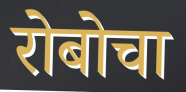
रोबोचा